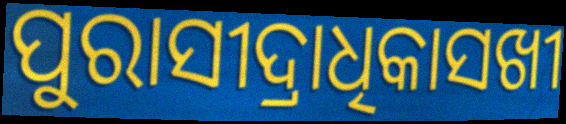
ପୁରାସୀଦ୍ରାଧିକାସଖୀ